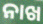
ନାଖ